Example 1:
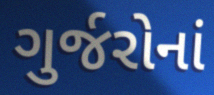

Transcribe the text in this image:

ગુર્જરોનાં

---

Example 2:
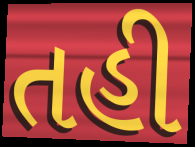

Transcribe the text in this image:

તહી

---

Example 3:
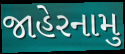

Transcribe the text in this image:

જાહેરનામુ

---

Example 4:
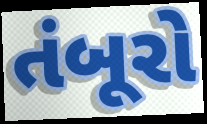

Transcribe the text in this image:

તંબૂરો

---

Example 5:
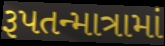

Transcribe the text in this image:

રૂપતન્માત્રામાં